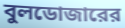
বুলডোজারের